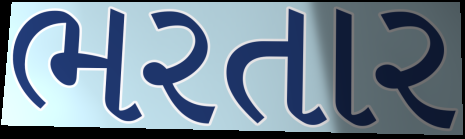
ભરતાર